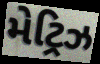
મેટ્રિઝ